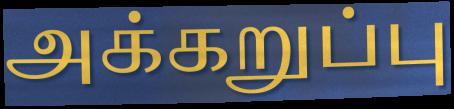
அக்கறுப்பு